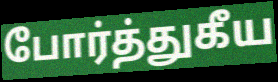
போர்த்துகீய